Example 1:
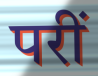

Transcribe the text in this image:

परीं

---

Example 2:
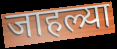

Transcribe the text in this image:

जाहल्या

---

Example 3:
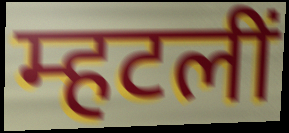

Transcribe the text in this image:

म्हटलीं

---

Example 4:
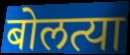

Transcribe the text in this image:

बोलत्या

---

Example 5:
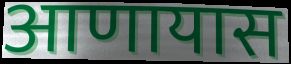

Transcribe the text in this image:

आणायास